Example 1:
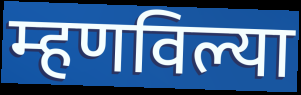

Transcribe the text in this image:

म्हणविल्या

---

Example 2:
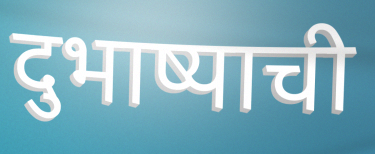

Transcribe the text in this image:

दुभाष्याची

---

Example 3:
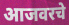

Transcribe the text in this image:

आजवरचे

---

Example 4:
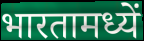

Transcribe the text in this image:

भारतामध्यें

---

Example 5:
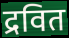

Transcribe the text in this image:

द्रवित